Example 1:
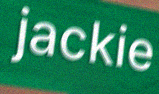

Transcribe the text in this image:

jackie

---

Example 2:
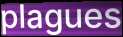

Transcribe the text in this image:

plagues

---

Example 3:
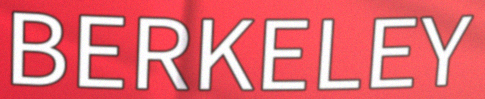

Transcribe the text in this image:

BERKELEY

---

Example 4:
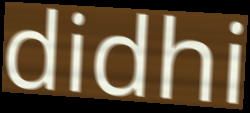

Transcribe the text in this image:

didhi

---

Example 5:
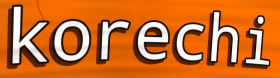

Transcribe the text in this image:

korechi